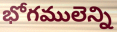
భోగములెన్ని